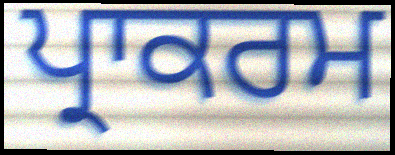
ਪ੍ਰਾਕਰਮ